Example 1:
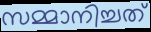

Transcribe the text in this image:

സമ്മാനിച്ചത്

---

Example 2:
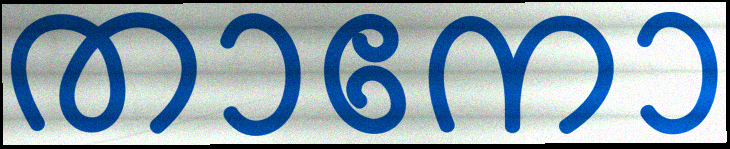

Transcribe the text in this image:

താനോ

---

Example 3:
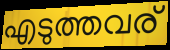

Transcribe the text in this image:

എടുത്തവര്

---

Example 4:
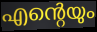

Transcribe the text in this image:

എന്റെയും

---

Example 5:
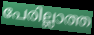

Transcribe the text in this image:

പേരില്ലാത്ത